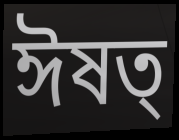
ঈষত্